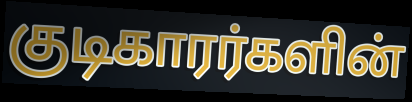
குடிகாரர்களின்